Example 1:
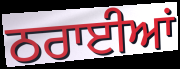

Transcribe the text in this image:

ਠਰਾਈਆਂ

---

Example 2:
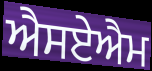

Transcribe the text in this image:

ਐਸਏਐਮ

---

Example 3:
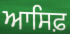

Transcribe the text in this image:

ਆਸਿਫ਼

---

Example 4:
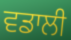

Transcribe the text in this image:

ਵਡਾਲੀ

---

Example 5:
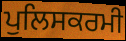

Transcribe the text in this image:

ਪੁਲਿਸਕਰਮੀ